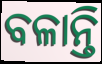
ବଳାନ୍ତି